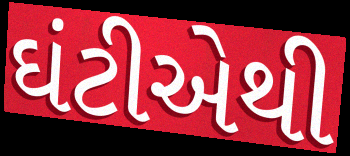
ઘંટીએથી